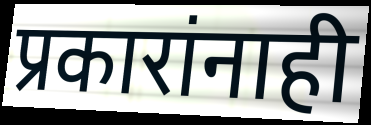
प्रकारांनाही